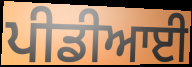
ਪੀਡੀਆਈ